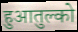
हुआतुल्को